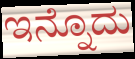
ಇನ್ನೊದು